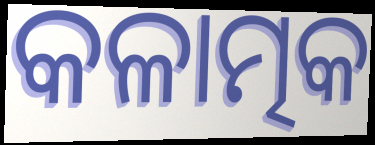
କଳାତ୍ମକ